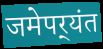
जमेपर्यंत